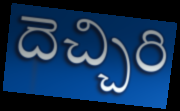
దెచ్చిరి